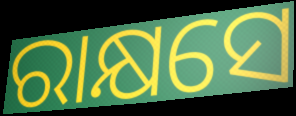
ରାକ୍ଷସେ